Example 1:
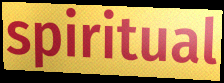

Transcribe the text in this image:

spiritual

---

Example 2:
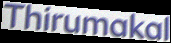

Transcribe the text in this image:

Thirumakal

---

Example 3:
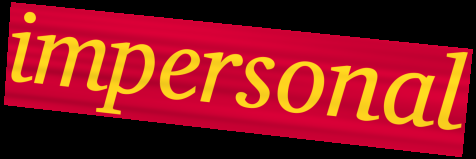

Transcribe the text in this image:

impersonal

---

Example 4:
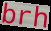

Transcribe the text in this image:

brh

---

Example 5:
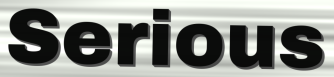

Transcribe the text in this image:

Serious